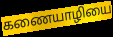
கணையாழியை